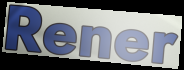
Rener